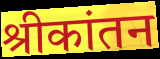
श्रीकांतन